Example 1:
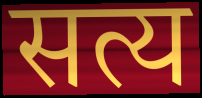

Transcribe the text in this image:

सत्य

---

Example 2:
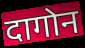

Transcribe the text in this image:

दागोन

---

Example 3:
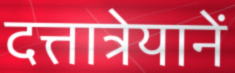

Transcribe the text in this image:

दत्तात्रेयानें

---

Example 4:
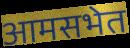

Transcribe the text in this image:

आमसभेत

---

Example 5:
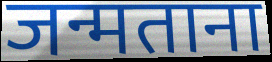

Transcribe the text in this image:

जन्मताना